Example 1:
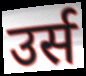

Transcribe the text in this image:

उर्स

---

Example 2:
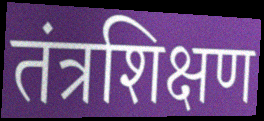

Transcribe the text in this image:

तंत्रशिक्षण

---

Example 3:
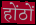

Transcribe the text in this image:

होंठों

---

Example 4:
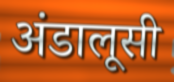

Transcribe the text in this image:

अंडालूसी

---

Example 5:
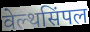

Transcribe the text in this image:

वेल्थसिंपल